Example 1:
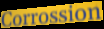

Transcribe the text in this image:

Corrossion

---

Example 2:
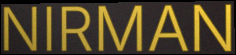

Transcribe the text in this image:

NIRMAN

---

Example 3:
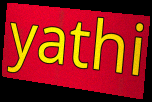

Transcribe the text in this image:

yathi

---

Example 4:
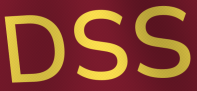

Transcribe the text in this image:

DSS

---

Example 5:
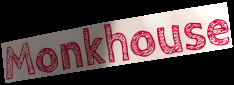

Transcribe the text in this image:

Monkhouse